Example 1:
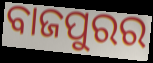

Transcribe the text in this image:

ବାଜପୁରର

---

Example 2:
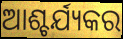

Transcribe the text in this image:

ଆଶ୍ଚର୍ଯ୍ୟକର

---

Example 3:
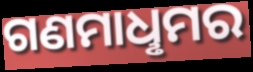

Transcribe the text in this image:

ଗଣମାଧୢମର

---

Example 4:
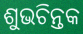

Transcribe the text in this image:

ଶୁଭଚିନ୍ତକ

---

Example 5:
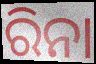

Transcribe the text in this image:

ରିନା